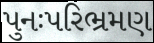
પુનઃપરિભ્રમણ